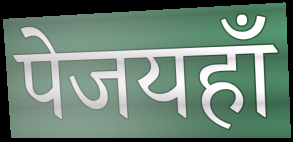
पेजयहाँ